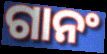
ଗାନଂ